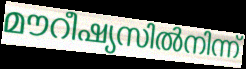
മൗറീഷ്യസിൽനിന്ന്